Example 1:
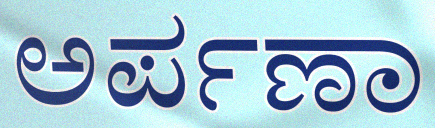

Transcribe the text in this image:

ಅರ್ಪಣಾ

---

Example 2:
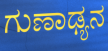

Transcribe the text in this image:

ಗುಣಾಢ್ಯನ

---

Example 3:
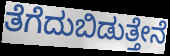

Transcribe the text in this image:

ತೆಗೆದುಬಿಡುತ್ತೇನೆ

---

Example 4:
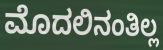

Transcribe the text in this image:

ಮೊದಲಿನಂತಿಲ್ಲ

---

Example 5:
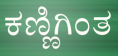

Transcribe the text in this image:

ಕಣ್ಣಿಗಿಂತ